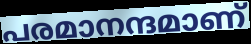
പരമാനന്ദമാണ്